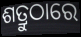
ଶତ୍ରୁଠାରେ